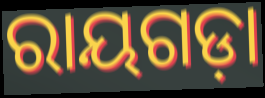
ରାୟଗଡ଼ା